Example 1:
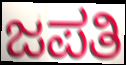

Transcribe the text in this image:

ಜಪತಿ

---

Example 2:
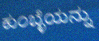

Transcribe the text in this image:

ಕುಂಬ್ಳೆಯನ್ನು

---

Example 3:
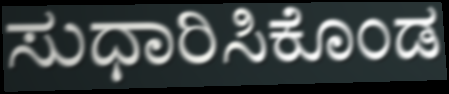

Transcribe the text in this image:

ಸುಧಾರಿಸಿಕೊಂಡ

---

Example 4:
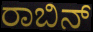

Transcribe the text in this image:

ರಾಬಿನ್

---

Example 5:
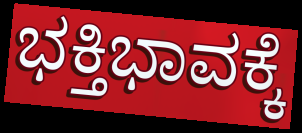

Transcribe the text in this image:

ಭಕ್ತಿಭಾವಕ್ಕೆ